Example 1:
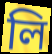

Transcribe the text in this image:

লি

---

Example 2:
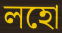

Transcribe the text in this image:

লহো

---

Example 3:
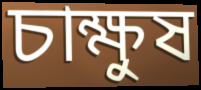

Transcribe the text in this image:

চাক্ষুষ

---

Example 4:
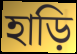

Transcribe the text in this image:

হাড়ি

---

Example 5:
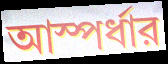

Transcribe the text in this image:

আস্পর্ধার